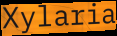
Xylaria